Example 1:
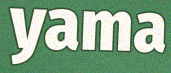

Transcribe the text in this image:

yama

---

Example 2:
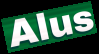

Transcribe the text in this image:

Alus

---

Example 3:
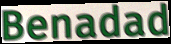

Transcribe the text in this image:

Benadad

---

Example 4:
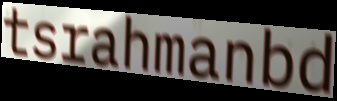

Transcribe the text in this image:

tsrahmanbd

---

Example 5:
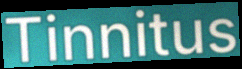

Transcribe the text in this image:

Tinnitus